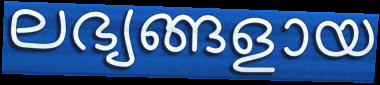
ലഭ്യങ്ങളായ